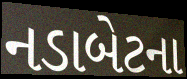
નડાબેટના